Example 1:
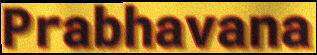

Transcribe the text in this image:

Prabhavana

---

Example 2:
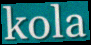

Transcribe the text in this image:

kola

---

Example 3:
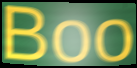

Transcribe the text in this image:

Boo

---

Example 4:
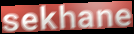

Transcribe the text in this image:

sekhane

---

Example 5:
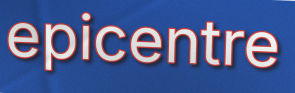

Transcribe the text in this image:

epicentre